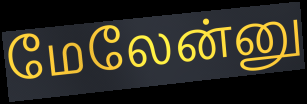
மேலேன்னு